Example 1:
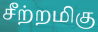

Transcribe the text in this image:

சீற்றமிகு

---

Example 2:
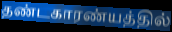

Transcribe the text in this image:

தண்டகாரண்யத்தில்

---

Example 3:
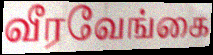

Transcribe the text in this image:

வீரவேங்கை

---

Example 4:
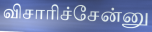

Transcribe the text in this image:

விசாரிச்சேன்னு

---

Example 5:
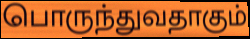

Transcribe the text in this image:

பொருந்துவதாகும்